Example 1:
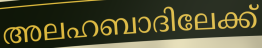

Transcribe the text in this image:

അലഹബാദിലേക്ക്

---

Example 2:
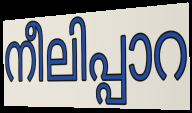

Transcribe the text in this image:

നീലിപ്പാറ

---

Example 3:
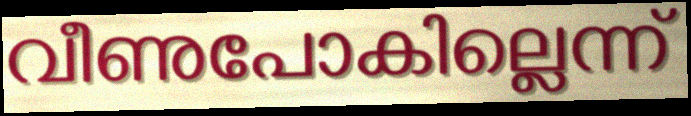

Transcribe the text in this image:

വീണുപോകില്ലെന്ന്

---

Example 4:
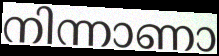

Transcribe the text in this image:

നിന്നാണാ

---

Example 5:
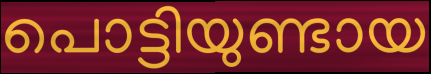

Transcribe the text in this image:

പൊട്ടിയുണ്ടായ